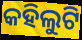
କହିଲୁଟି